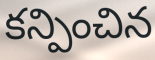
కన్పించిన